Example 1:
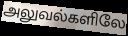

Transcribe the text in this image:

அலுவல்களிலே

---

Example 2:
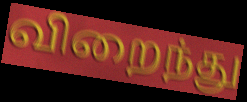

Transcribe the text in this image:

விறைந்து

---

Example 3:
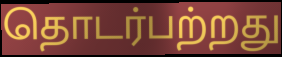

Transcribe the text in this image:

தொடர்பற்றது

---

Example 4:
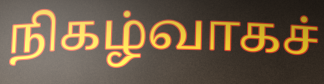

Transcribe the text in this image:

நிகழ்வாகச்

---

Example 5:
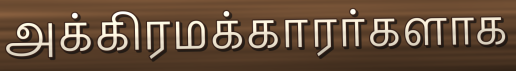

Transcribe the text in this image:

அக்கிரமக்காரர்களாக